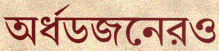
অর্ধডজনেরও